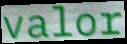
valor